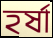
হর্ষা